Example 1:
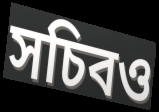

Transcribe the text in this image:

সচিবও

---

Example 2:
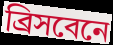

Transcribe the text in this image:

ব্রিসবেনে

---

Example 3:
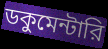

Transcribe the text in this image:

ডকুমেন্টারি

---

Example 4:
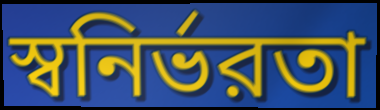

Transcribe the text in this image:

স্বনির্ভরতা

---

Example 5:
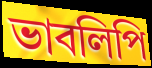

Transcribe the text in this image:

ভাবলিপি